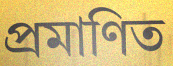
প্রমাণিত